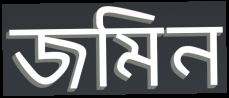
জমিন